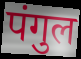
पंगुल